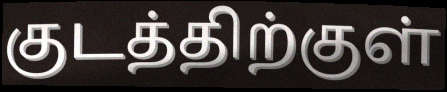
குடத்திற்குள்